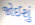
જોઈશું